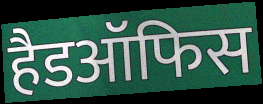
हैडऑफिस